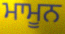
ਮਾਮੂਨ